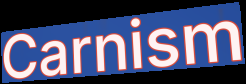
Carnism